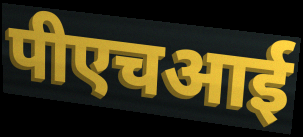
पीएचआई